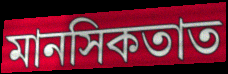
মানসিকতাত